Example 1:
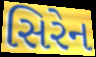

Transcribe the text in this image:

સિરેન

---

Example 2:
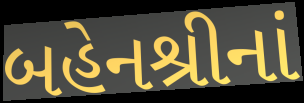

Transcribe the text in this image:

બહેનશ્રીનાં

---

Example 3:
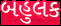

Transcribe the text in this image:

બહુલક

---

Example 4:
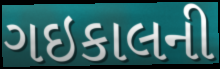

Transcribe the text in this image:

ગઇકાલની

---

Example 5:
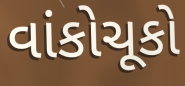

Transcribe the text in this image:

વાંકોચૂકો